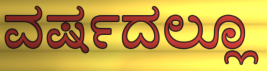
ವರ್ಷದಲ್ಲೂ